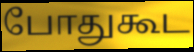
போதுகூட